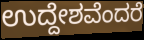
ಉದ್ದೇಶವೆಂದರೆ